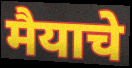
मैयाचे